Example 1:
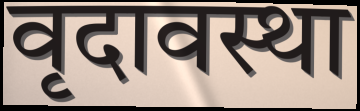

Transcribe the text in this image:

वृदावस्था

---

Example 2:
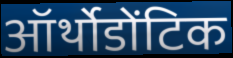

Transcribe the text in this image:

ऑर्थोडोंटिक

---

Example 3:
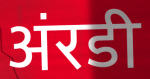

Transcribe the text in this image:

अंरडी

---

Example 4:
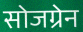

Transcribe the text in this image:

सोजग्रेन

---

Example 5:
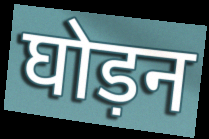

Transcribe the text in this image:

घोड़न